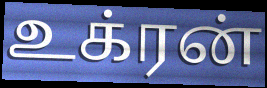
உக்ரன்